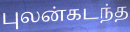
புலன்கடந்த